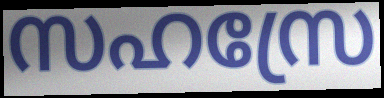
സഹസ്രേ